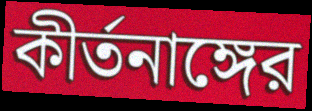
কীর্তনাঙ্গের